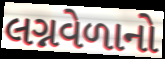
લગ્નવેળાનો